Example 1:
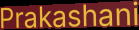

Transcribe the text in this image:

Prakashani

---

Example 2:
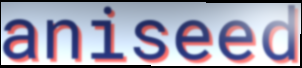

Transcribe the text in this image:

aniseed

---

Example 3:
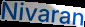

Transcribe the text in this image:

Nivaran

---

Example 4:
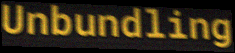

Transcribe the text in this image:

Unbundling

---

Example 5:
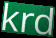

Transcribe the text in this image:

krd